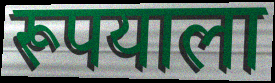
रूपयाला